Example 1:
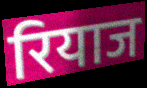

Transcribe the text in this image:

रियाज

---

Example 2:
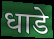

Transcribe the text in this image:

धाडे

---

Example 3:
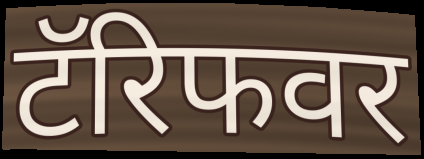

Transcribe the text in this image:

टॅरिफवर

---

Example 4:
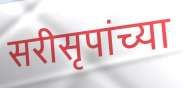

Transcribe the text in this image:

सरीसृपांच्या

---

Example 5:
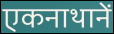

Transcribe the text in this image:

एकनाथानें